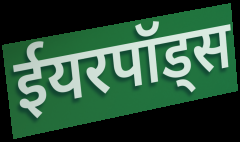
ईयरपॉड्स